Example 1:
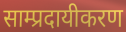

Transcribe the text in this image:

साम्प्रदायीकरण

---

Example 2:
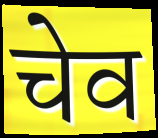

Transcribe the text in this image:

चेव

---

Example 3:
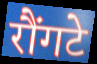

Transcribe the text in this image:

रौंगटे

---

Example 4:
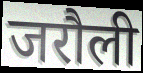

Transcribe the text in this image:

जरौली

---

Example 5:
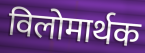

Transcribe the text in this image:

विलोमार्थक